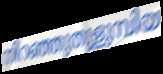
നിറഞ്ഞുതുളുമ്പിയ